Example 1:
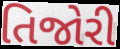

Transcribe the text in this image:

તિજોરી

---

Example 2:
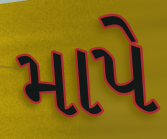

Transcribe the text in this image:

માપે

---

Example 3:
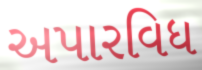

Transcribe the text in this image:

અપારવિધ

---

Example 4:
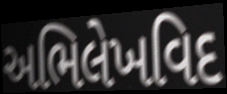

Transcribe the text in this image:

અભિલેખવિદ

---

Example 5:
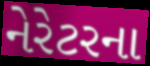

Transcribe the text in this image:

નેરેટરના